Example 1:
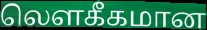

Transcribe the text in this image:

லெளகீகமான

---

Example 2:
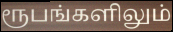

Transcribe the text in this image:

ரூபங்களிலும்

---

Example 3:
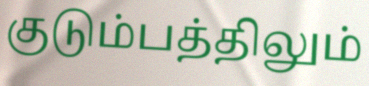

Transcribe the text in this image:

குடும்பத்திலும்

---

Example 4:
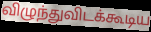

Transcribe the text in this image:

விழுந்துவிடக்கூடிய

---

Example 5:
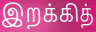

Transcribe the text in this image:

இறக்கித்